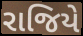
રાજિયે